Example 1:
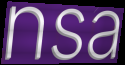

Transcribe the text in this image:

nsa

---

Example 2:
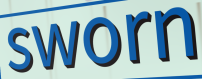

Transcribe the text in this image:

sworn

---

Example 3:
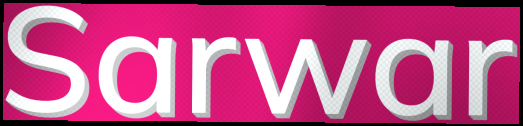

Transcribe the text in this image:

Sarwar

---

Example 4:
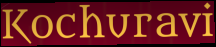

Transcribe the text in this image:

Kochuravi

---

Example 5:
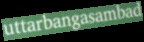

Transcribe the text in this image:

uttarbangasambad